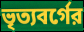
ভৃত্যবর্গের